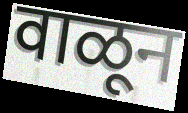
वाळून